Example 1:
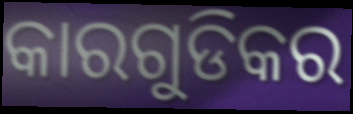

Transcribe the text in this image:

କାରଗୁଡିକର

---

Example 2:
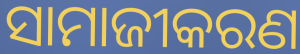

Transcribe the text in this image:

ସାମାଜୀକରଣ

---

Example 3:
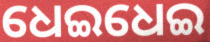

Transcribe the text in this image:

ଧେଇଧେଇ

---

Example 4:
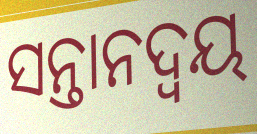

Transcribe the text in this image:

ସନ୍ତାନଦ୍ୱୟ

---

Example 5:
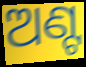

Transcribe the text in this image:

ଅଣ୍ଟ